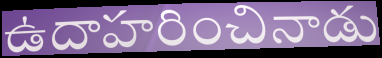
ఉదాహరించినాడు